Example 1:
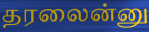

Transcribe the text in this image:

தரலைன்னு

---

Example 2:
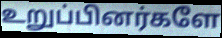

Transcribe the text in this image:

உறுப்பினர்களே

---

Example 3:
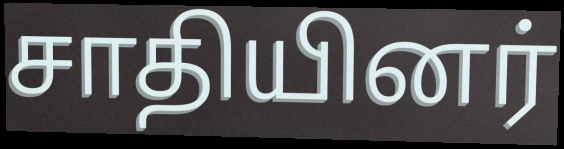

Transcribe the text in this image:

சாதியினர்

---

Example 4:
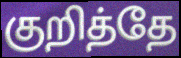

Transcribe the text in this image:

குறித்தே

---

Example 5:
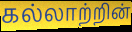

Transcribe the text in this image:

கல்லாற்றின்